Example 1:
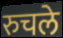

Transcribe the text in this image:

रुचले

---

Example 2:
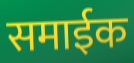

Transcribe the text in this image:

समाईक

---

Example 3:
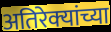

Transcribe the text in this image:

अतिरेक्‍यांच्या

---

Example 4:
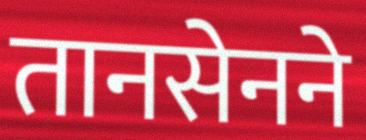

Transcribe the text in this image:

तानसेनने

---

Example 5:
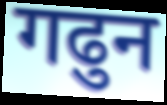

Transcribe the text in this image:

गढुन